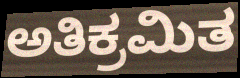
ಅತಿಕ್ರಮಿತ